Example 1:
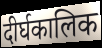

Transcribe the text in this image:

दीर्घकालिक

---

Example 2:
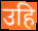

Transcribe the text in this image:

उहि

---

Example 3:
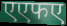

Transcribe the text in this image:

एएफए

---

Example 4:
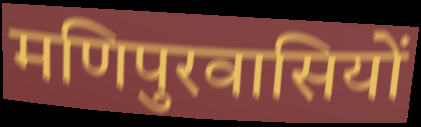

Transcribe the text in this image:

मणिपुरवासियों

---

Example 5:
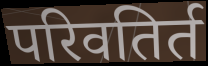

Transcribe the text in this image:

परिवतिर्त